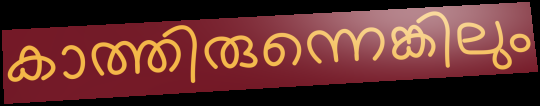
കാത്തിരുന്നെങ്കിലും